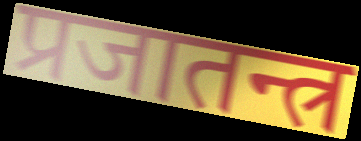
प्रजातन्त्र